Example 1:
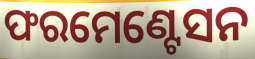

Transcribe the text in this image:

ଫରମେଣ୍ଟେସନ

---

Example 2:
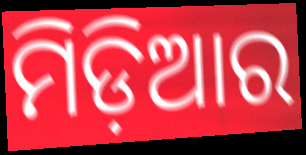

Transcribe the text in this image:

ମିଡ଼ିଆର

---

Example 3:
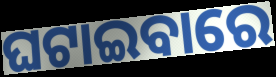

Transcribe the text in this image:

ଘଟାଇବାରେ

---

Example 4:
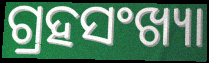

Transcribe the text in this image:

ଗ୍ରହସଂଖ୍ୟା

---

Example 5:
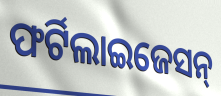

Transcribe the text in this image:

ଫର୍ଟିଲାଇଜେସନ୍